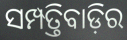
ସମ୍ପତ୍ତିବାଡ଼ିର